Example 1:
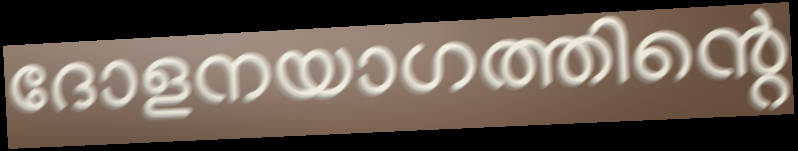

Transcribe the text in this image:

ദോളനയാഗത്തിന്റെ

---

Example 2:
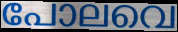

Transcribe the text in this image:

പോലവെ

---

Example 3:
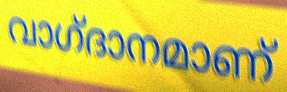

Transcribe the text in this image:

വാഗ്‌ദാനമാണ്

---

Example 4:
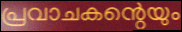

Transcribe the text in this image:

പ്രവാചകന്റെയും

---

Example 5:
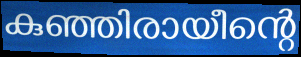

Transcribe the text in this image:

കുഞ്ഞിരായീന്റെ